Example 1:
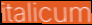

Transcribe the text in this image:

italicum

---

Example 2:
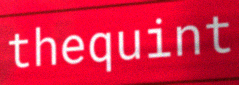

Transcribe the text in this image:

thequint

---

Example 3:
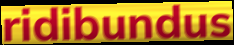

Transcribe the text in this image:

ridibundus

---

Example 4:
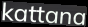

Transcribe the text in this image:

kattana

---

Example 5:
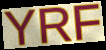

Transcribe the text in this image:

YRF